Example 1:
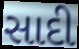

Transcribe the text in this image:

સાદી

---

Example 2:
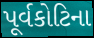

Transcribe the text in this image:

પૂર્વકોટિના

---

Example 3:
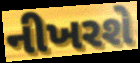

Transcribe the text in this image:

નીખરશે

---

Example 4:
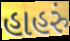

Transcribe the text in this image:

હાહરું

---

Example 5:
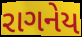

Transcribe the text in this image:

રાગનેય